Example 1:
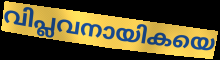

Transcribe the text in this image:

വിപ്ലവനായികയെ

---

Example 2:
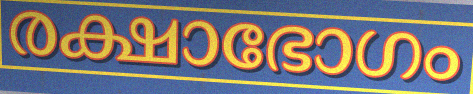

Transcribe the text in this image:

രക്ഷാഭോഗം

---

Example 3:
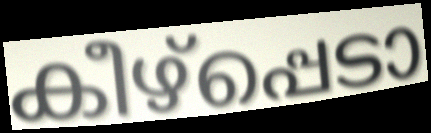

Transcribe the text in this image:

കീഴ്പ്പെടാ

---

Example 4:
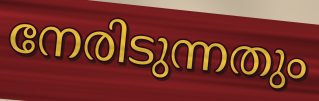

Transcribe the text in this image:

നേരിടുന്നതും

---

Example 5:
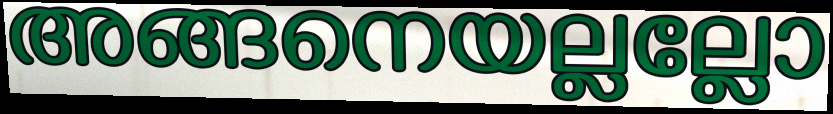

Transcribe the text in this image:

അങ്ങനെയല്ലല്ലോ